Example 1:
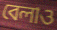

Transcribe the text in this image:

বেলাও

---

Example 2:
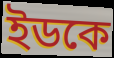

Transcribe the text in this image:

ইডকে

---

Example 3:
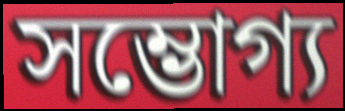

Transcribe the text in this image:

সম্ভোগ্য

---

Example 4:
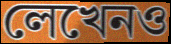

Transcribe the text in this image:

লেখেনও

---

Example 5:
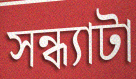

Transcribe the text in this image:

সন্ধ্যাটা